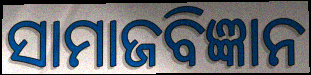
ସାମାଜବିଜ୍ଞାନ